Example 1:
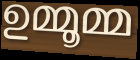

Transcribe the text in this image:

ഉമ്മൂമ്മ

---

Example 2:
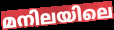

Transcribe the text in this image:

മനിലയിലെ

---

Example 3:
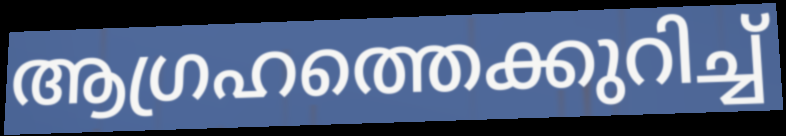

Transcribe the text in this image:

ആഗ്രഹത്തെക്കുറിച്ച്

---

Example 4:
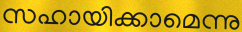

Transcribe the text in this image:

സഹായിക്കാമെന്നു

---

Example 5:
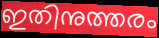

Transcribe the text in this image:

ഇതിനുത്തരം